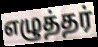
எழுத்தர்